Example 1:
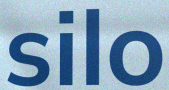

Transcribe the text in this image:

silo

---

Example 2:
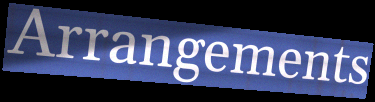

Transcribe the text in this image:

Arrangements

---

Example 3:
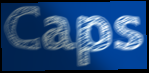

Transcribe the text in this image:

Caps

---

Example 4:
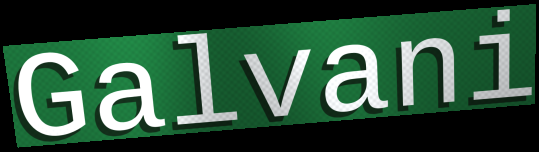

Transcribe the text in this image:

Galvani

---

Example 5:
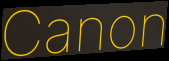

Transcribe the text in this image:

Canon